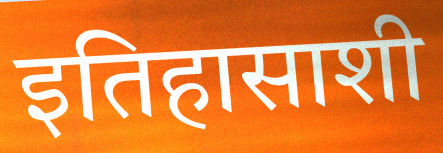
इतिहासाशी